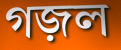
গজ়ল